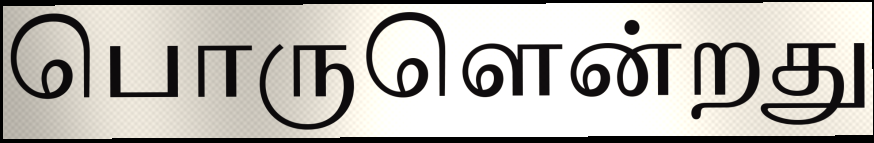
பொருளென்றது